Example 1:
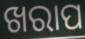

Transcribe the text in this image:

ଖରାପ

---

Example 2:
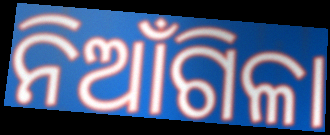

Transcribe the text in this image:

ନିଆଁଗିଳା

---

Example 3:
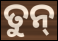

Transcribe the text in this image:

ତୁନ୍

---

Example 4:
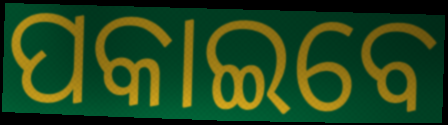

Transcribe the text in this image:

ପକାଇବେ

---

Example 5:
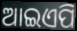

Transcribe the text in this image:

ଆଇଏପି